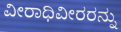
ವೀರಾಧಿವೀರರನ್ನು